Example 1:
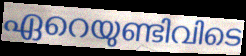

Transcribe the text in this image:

ഏറെയുണ്ടിവിടെ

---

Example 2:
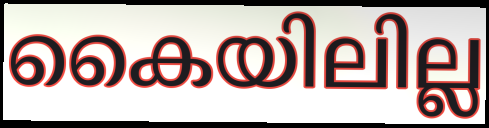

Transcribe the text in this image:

കൈയിലില്ല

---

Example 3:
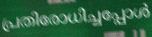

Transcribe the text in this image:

പ്രതിരോധിച്ചപ്പോൾ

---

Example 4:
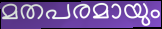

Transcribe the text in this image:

മതപരമായും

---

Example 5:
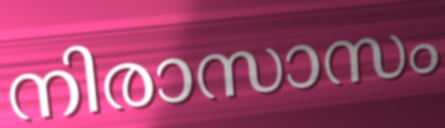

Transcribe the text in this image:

നിരാസാസം